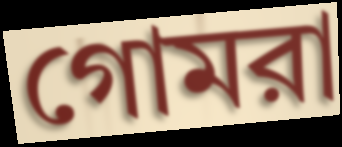
গোমরা